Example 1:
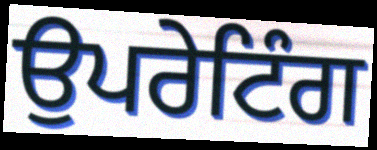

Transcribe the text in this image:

ਉਪਰੇਟਿੰਗ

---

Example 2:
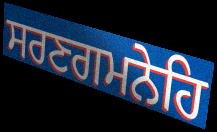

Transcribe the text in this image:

ਸਰਣਗਮਨੇਹਿ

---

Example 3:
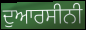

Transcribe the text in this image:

ਦੁਆਰਸੀਨੀ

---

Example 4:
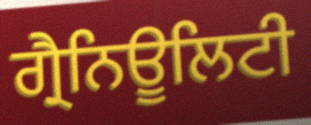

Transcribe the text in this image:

ਗ੍ਰੈਨਿਊਲਿਟੀ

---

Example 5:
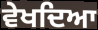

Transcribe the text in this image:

ਵੇਖਦਿਆ